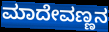
ಮಾದೇವಣ್ಣನ